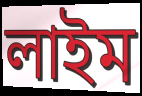
লাইম